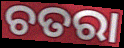
ଚତରା